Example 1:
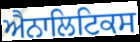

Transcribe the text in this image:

ਐਨਾਲਿਟਿਕਸ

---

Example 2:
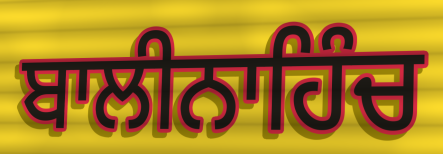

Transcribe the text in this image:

ਬਾਲੀਨਾਹਿੰਚ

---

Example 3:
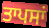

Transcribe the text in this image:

ਤਾਪਸਾਂ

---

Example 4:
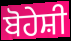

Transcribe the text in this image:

ਬੋਹੇਸ਼ੀ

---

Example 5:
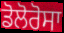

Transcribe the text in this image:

ਡੋਲੋਰੋਸਾ